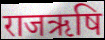
राजऋषि